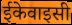
ईकेवाइसी